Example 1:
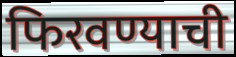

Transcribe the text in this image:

फिरवण्याची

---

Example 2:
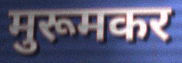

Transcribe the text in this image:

मुरूमकर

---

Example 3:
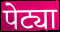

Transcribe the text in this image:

पेट्या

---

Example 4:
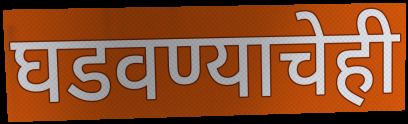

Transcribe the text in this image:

घडवण्याचेही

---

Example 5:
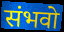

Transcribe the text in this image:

संभवो